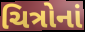
ચિત્રોનાં